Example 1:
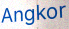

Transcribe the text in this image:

Angkor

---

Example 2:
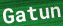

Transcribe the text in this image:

Gatun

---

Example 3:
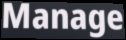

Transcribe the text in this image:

Manage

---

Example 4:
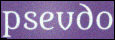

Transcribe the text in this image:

pseudo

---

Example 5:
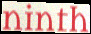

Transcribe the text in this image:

ninth